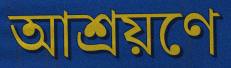
আশ্রয়ণে